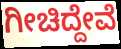
ಗೀಚಿದ್ದೇವೆ